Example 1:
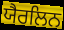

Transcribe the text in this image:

ਯੈਰਲਿਨ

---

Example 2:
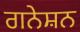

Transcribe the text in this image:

ਗਨੇਸ਼ਨ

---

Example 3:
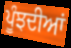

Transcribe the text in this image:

ਪੂੰਝਦੀਆਂ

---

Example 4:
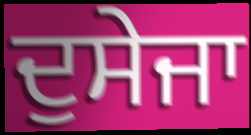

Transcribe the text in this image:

ਦੁਸੇਜਾ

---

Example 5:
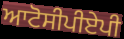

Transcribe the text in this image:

ਆਟੋਸੀਪੀਏਪੀ